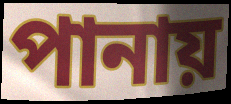
পানায়